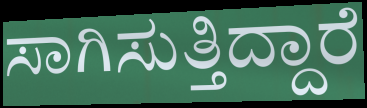
ಸಾಗಿಸುತ್ತಿದ್ದಾರೆ